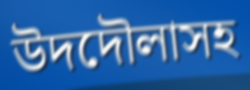
উদদৌলাসহ